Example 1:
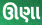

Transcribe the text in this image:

ઊણા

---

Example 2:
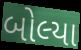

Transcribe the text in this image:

બોલ્યા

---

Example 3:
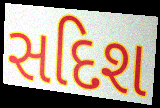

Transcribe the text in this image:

સદિશ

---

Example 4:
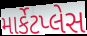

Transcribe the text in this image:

માર્કેટપ્લેસ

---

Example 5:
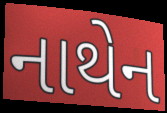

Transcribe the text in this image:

નાથેન